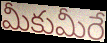
మీకుమీరే